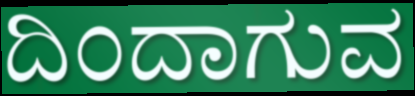
ದಿಂದಾಗುವ